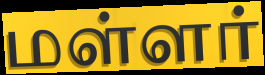
மள்ளர்